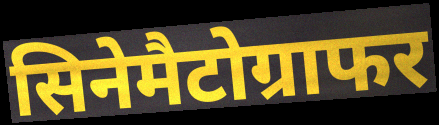
सिनेमैटोग्राफर